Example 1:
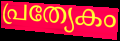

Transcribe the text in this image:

പ്രത്യേകം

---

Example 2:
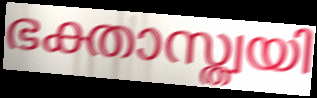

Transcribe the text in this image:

ഭക്താസ്ത്വയി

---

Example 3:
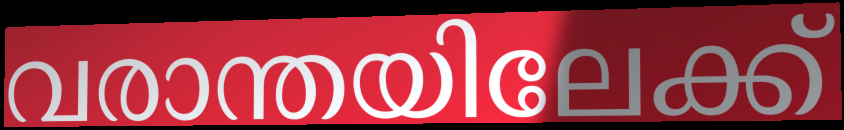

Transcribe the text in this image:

വരാന്തയിലേക്ക്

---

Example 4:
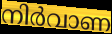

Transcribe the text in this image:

നിർവാണ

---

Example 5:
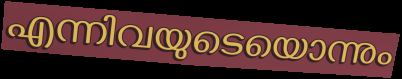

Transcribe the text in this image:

എന്നിവയുടെയൊന്നും